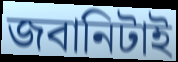
জবানিটাই